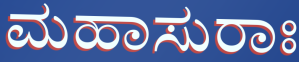
ಮಹಾಸುರಾಃ